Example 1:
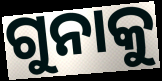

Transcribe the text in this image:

ଗୁନାକୁ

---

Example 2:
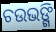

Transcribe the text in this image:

ଚଉଭଙ୍ଗି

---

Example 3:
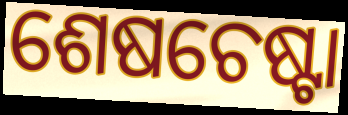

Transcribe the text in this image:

ଶେଷଚେଷ୍ଟା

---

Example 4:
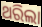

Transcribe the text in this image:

ଥରିଲା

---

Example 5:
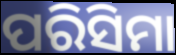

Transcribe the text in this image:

ପରିସିମା